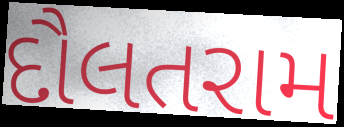
દૌલતરામ